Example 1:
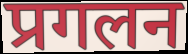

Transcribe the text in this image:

प्रगलन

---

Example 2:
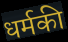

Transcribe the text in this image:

धर्मकी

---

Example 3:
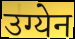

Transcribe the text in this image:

उग्येन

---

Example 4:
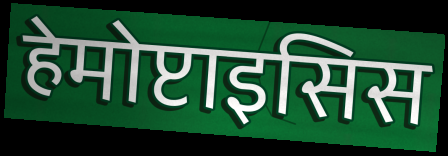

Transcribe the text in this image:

हेमोप्टाइसिस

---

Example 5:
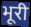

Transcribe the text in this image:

भूरी